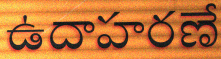
ఉదాహరణే